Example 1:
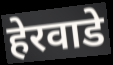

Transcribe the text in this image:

हेरवाडे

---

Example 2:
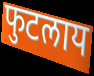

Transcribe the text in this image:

फुटलाय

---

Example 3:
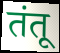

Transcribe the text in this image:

तंतू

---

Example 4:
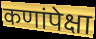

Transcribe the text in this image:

कणांपेक्षा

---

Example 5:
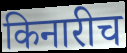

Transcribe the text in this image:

किनारीच